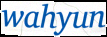
wahyun